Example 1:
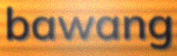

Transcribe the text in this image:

bawang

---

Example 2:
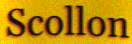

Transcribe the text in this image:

Scollon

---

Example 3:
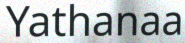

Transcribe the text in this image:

Yathanaa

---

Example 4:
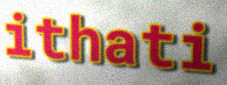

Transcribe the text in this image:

ithati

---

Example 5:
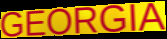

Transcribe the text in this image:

GEORGIA